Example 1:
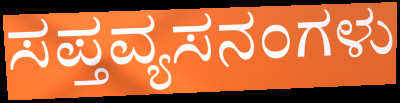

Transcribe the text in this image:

ಸಪ್ತವ್ಯಸನಂಗಳು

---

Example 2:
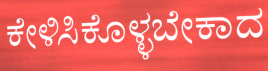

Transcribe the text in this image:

ಕೇಳಿಸಿಕೊಳ್ಳಬೇಕಾದ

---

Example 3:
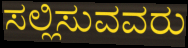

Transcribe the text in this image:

ಸಲ್ಲಿಸುವವರು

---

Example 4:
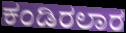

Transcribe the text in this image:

ಕಂಡಿರಲಾರ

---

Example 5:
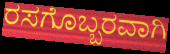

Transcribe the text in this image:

ರಸಗೊಬ್ಬರವಾಗಿ